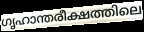
ഗൃഹാന്തരീക്ഷത്തിലെ